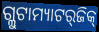
ଗ୍ଲୁଟାମ୍ୟାଟର୍‌ଜିକ୍